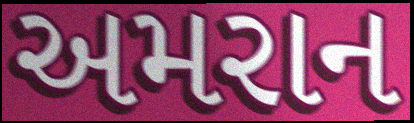
અમરાન